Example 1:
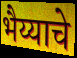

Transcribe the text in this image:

भैय्याचे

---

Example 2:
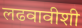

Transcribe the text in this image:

लढवावीशी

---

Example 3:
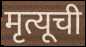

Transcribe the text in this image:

मृत्यूची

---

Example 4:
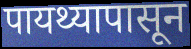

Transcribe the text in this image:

पायथ्यापासून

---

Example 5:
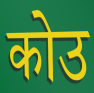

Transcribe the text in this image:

कोउ